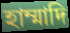
হাম্মাদি